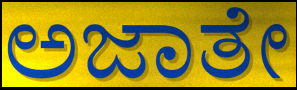
ಅಜಾತೇ